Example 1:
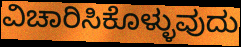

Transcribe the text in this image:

ವಿಚಾರಿಸಿಕೊಳ್ಳುವುದು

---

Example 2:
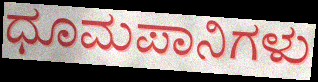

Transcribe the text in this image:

ಧೂಮಪಾನಿಗಳು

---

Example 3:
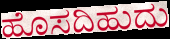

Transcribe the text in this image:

ಹೊಸದಿಹುದು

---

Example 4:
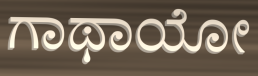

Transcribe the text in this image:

ಗಾಥಾಯೋ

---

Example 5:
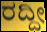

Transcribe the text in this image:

ರದ್ದೀ